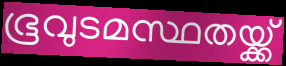
ഭൂവുടമസ്ഥതയ്ക്ക്